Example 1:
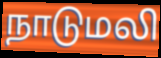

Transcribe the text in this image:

நாடுமலி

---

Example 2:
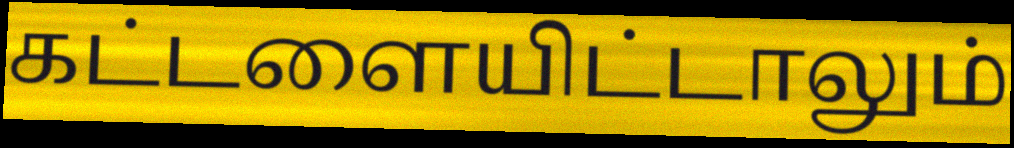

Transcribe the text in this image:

கட்டளையிட்டாலும்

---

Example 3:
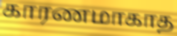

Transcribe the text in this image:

காரணமாகாத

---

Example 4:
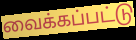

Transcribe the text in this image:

வைக்கப்பட்டு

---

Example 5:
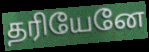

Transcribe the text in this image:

தரியேனே